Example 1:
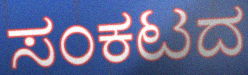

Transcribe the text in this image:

ಸಂಕಟದ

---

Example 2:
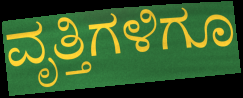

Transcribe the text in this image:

ವೃತ್ತಿಗಳಿಗೂ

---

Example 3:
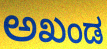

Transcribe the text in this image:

ಅಖಂಡ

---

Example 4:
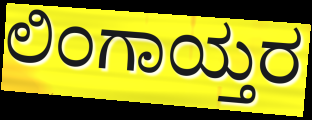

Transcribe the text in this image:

ಲಿಂಗಾಯ್ತರ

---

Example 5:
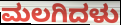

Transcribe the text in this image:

ಮಲಗಿದಳು